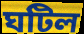
ঘটিল